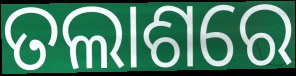
ତଲାଶରେ